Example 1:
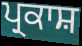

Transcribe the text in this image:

ਪ੍ਰਕਾਸ਼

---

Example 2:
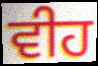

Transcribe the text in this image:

ਵੀਹ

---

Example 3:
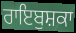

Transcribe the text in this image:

ਰਾਇਬੁਸ਼ਕਾ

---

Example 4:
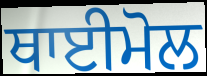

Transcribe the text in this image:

ਥਾਈਮੋਲ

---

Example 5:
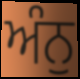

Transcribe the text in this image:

ਅੰਨੁ